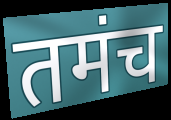
तमंच